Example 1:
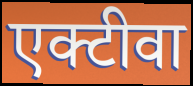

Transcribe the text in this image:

एक्टीवा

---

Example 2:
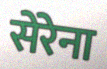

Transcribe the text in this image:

सेरेना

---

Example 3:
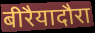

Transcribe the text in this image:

बीरैयादौरा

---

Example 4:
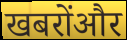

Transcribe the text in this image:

खबरोंऔर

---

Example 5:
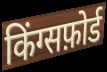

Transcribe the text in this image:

किंग्सफ़ोर्ड